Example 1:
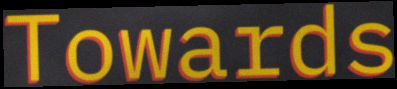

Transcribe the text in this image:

Towards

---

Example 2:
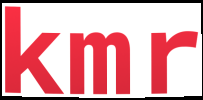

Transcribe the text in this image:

kmr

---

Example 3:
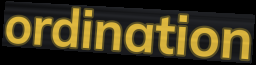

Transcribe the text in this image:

ordination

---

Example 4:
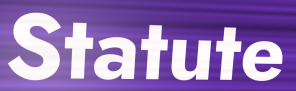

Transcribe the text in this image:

Statute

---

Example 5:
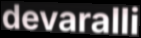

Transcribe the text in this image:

devaralli